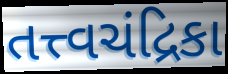
તત્ત્વચંદ્રિકા